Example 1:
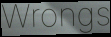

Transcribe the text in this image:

Wrongs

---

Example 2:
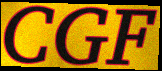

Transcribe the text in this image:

CGF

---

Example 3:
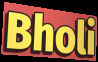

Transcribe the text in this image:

Bholi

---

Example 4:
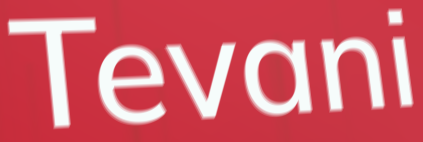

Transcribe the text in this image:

Tevani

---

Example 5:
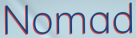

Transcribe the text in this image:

Nomad